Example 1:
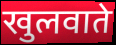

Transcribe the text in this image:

खुलवाते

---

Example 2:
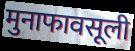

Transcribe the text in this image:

मुनाफावसूली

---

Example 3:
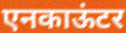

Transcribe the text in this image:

एनकाऊंटर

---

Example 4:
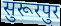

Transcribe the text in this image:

सुरूरपुर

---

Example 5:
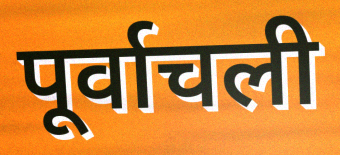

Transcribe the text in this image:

पूर्वाचली